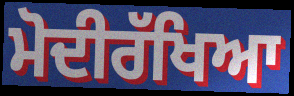
ਮੋਦੀਰੱਖਿਆ